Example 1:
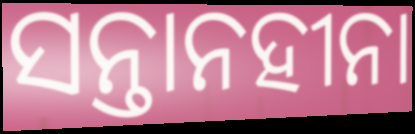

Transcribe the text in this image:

ସନ୍ତାନହୀନା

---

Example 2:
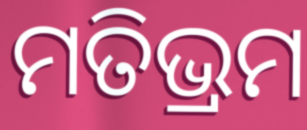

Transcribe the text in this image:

ମତିଭ୍ରମ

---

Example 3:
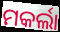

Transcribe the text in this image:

ମକର୍ଲା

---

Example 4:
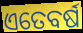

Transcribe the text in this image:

ଏତେବର୍ଷ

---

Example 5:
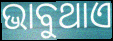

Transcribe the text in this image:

ଭାବୁଥାଏ